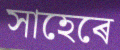
সাহেৰে